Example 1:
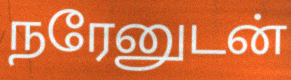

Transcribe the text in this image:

நரேனுடன்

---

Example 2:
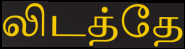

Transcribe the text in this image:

லிடத்தே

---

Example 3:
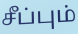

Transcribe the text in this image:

சீப்பும்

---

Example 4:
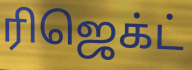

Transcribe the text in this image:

ரிஜெக்ட்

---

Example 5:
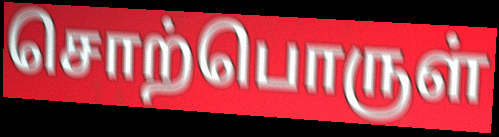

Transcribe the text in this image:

சொற்பொருள்